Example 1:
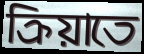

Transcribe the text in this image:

ক্রিয়াতে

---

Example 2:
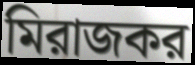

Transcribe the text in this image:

মিরাজকর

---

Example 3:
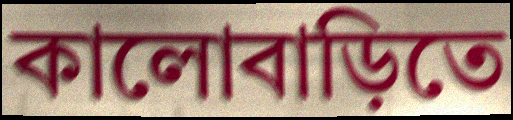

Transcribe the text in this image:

কালোবাড়িতে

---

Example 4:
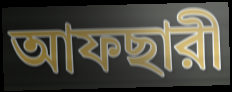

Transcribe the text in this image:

আফছারী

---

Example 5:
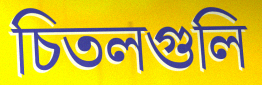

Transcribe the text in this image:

চিতলগুলি